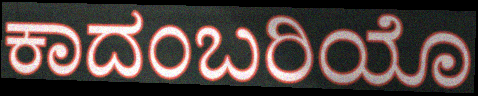
ಕಾದಂಬರಿಯೊ